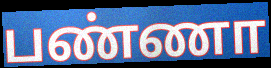
பண்ணா